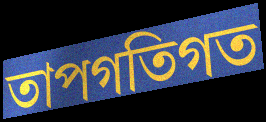
তাপগতিগত